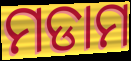
ମଡାମ